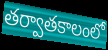
తర్వాతకాలంలో